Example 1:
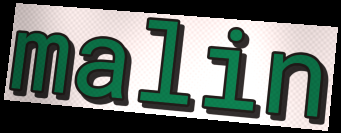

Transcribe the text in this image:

malin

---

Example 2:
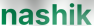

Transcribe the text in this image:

nashik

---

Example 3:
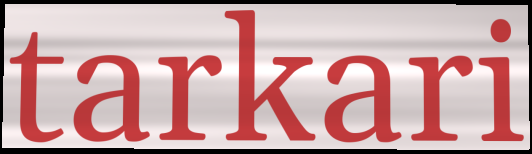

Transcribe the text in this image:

tarkari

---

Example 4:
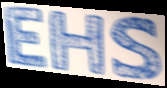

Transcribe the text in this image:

EHS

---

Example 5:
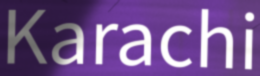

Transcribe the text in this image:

Karachi